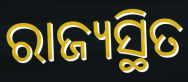
ରାଜ୍ୟସ୍ଥିତ